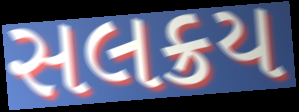
સલક્રય